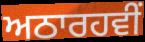
ਅਠਾਰਹਵੀਂ